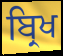
ਬ੍ਰਿਖ